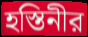
হস্তিনীর